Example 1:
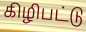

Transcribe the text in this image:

கிழிபட்டு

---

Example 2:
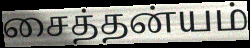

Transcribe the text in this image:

சைத்தன்யம்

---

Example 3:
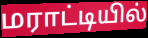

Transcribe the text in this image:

மராட்டியில்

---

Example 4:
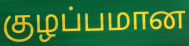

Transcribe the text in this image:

குழப்பமான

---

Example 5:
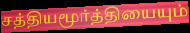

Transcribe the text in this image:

சத்தியமூர்த்தியையும்